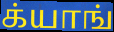
க்யாங்